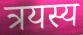
त्रयस्य